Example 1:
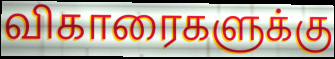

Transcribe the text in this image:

விகாரைகளுக்கு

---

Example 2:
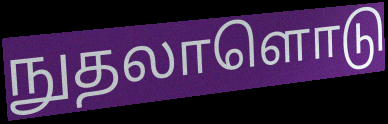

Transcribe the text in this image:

நுதலாளொடு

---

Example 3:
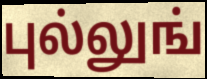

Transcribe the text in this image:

புல்லுங்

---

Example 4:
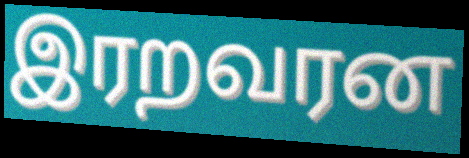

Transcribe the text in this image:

இரறவரன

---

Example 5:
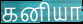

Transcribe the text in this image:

கனியா